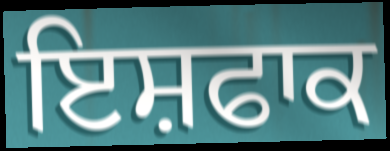
ਇਸ਼ਫਾਕ